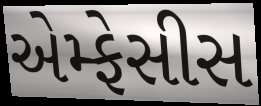
એમ્ફેસીસ